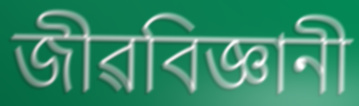
জীৱবিজ্ঞানী